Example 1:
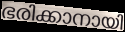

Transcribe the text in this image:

ഭരിക്കാനായി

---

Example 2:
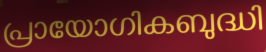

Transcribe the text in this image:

പ്രായോഗികബുദ്ധി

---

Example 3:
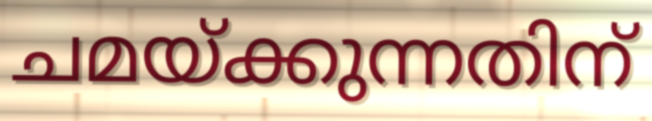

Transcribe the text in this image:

ചമയ്ക്കുന്നതിന്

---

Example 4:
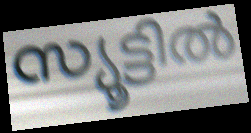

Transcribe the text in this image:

സ്യൂട്ടിൽ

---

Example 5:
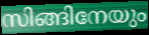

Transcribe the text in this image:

സിങ്ങിനേയും